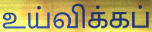
உய்விக்கப்